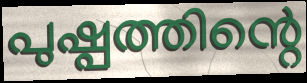
പുഷ്പത്തിന്റെ